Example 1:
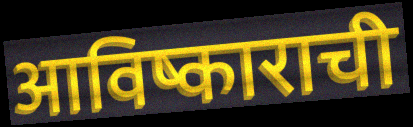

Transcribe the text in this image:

आविष्काराची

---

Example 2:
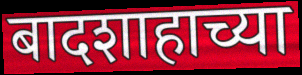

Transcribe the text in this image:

बादशाहाच्या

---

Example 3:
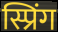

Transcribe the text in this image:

स्प्रिंग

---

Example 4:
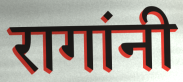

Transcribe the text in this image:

रागांनी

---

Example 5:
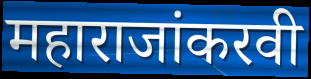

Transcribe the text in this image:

महाराजांकरवी